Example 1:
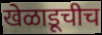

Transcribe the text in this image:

खेळाडूचीच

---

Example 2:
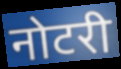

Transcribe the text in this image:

नोटरी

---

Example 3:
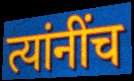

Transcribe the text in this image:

त्यांनींच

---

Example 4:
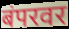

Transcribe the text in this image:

बंपरवर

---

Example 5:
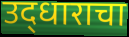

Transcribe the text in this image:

उद्धाराचा